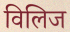
विलिज